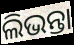
ଲିଭନ୍ତା